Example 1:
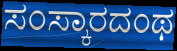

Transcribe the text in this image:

ಸಂಸ್ಕಾರದಂಥ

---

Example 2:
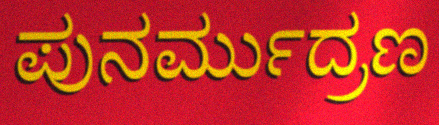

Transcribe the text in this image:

ಪುನರ್ಮುದ್ರಣ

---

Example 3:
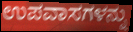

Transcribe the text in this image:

ಉಪವಾಸಗಳನ್ನು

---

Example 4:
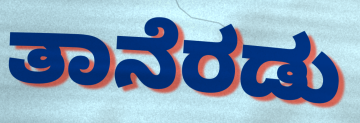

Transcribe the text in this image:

ತಾನೆರಡು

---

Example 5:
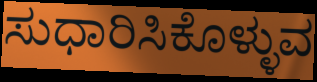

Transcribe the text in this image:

ಸುಧಾರಿಸಿಕೊಳ್ಳುವ